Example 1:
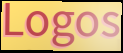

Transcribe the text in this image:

Logos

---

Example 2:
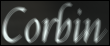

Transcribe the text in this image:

Corbin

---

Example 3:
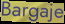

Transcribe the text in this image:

Bargaje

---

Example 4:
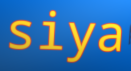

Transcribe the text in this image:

siya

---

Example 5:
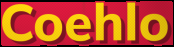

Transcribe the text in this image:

Coehlo